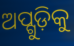
ଅପ୍ଗୁଡ଼ିକୁ